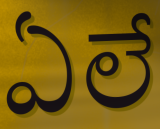
ఏలే